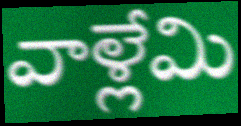
వాళ్లేమి